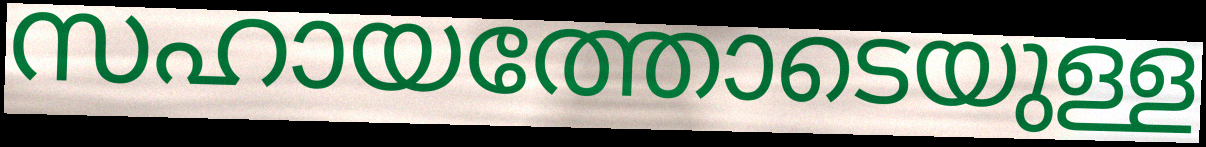
സഹായത്തോടെയുള്ള